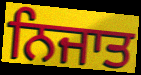
ਨਿਜਾਤ